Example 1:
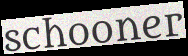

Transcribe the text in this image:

schooner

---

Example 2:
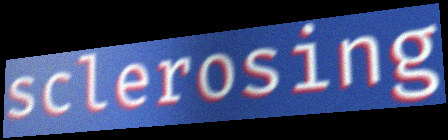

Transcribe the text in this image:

sclerosing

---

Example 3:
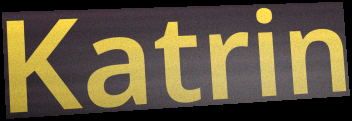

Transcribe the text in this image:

Katrin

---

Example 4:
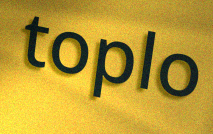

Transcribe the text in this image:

toplo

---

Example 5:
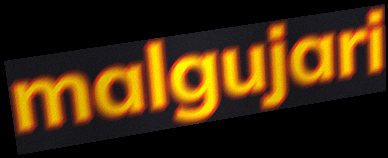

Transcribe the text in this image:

malgujari